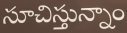
సూచిస్తున్నాం